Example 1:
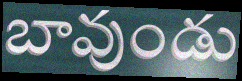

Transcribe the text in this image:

బావుండు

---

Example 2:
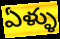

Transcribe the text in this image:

ఏళ్ళు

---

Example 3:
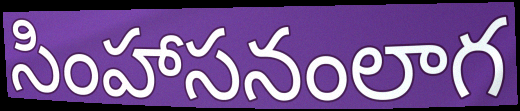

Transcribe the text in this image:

సింహాసనంలాగ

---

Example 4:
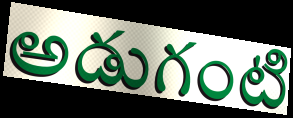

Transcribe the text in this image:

అడుగంటి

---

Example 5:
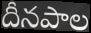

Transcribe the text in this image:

దీనపాల